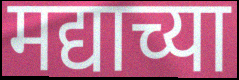
मद्याच्या